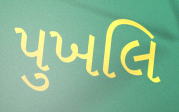
પુખલિ